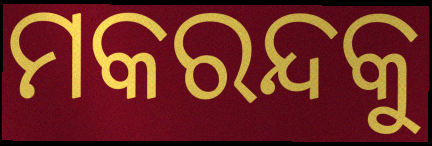
ମକରନ୍ଦକୁ